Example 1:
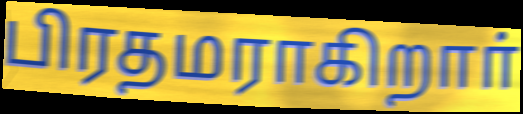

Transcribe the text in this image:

பிரதமராகிறார்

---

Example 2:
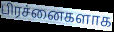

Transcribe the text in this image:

பிரச்னைகளாக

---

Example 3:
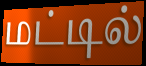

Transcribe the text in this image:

மட்டில்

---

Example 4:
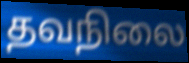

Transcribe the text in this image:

தவநிலை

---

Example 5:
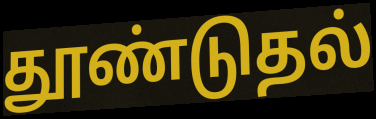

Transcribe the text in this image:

தூண்டுதல்